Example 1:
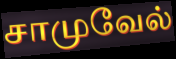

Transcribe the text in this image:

சாமுவேல்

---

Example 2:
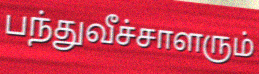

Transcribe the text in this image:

பந்துவீச்சாளரும்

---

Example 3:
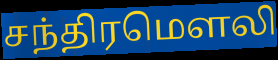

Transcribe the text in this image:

சந்திரமௌலி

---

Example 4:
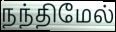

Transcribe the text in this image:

நந்திமேல்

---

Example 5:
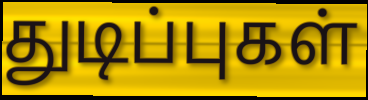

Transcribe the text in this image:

துடிப்புகள்